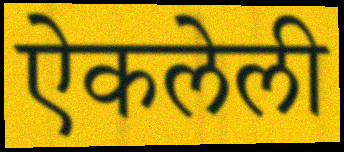
ऐकलेली